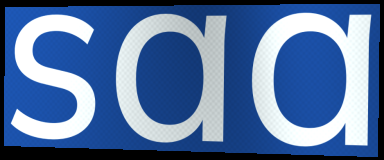
saa